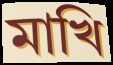
মাখি